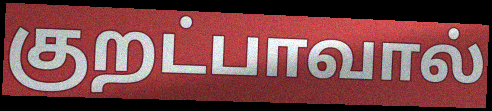
குறட்பாவால்